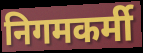
निगमकर्मी